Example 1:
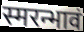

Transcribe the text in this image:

स्मरन्भावं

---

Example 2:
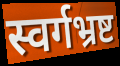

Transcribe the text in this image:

स्वर्गभ्रष्ट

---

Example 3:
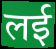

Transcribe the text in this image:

लई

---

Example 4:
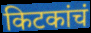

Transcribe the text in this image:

किटकांचं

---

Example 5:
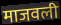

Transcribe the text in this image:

माजवली